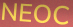
NEOC